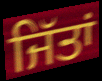
ਜਿੱਤਾਂ